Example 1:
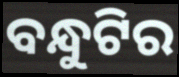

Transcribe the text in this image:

ବନ୍ଧୁଟିର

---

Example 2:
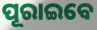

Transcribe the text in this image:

ପୂରାଇବେ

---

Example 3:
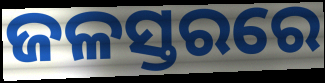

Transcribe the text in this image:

ଜଳସ୍ତରରେ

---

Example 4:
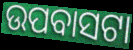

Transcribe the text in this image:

ଉପବାସଟା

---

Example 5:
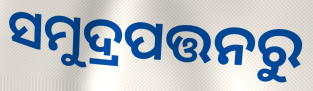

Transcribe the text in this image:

ସମୁଦ୍ରପତ୍ତନରୁ